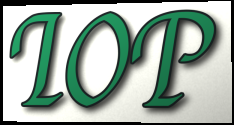
IOP